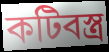
কটিবস্ত্র